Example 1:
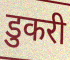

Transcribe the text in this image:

डुकरी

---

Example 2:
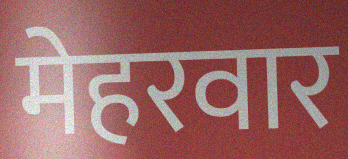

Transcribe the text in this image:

मेहरवार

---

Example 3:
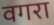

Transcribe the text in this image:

वगरा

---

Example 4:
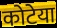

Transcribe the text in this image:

कोटेया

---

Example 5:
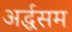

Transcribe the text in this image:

अर्द्धसम